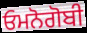
ਓਮਨੋਗੋਬੀ